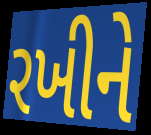
રખીને